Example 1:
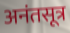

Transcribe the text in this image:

अनंतसूत्र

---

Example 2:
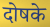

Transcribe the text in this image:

दोषके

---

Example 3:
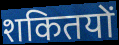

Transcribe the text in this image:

शकितयों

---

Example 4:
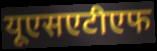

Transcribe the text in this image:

यूएसएटीएफ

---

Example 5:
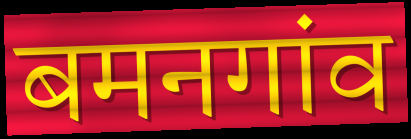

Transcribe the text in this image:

बमनगांव